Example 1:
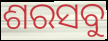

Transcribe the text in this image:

ଶରସବୁ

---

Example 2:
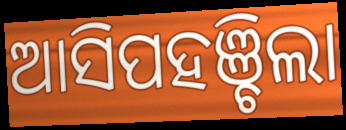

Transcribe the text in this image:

ଆସିପହଞ୍ଚିଲା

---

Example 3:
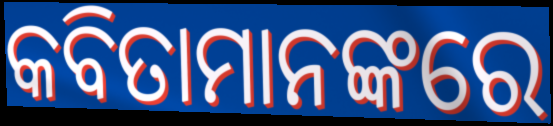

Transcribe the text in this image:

କବିତାମାନଙ୍କରେ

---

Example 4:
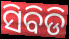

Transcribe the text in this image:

ସିବିଡି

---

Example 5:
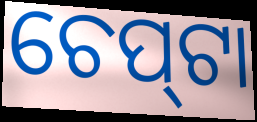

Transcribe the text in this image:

ଚେପ୍‍ଟା